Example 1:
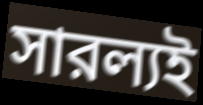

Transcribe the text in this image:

সারল্যই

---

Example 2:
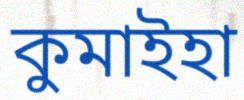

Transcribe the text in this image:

কুমাইহা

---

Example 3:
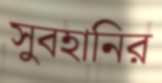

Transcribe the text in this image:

সুবহানির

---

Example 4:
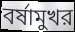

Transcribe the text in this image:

বর্ষামুখর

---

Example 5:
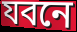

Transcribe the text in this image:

যবনে